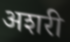
अशरी